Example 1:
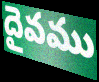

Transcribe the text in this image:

దైవము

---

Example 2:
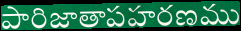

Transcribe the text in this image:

పారిజాతాపహరణము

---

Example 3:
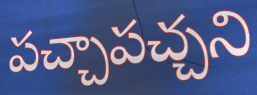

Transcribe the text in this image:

పచ్చాపచ్చని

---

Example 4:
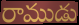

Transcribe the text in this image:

రాముడు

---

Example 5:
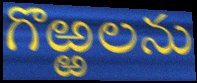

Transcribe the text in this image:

గొఱ్ఱలను